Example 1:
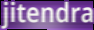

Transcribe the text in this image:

jitendra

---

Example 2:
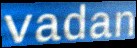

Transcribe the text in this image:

vadan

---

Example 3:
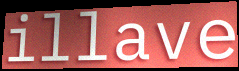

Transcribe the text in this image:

illave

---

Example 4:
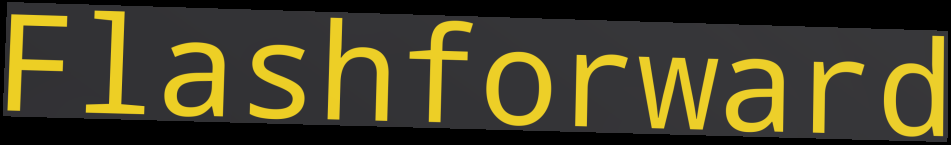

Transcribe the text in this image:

Flashforward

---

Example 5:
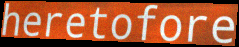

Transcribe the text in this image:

heretofore